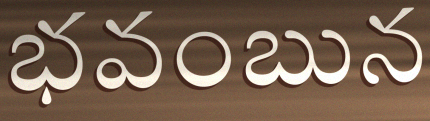
భవంబున